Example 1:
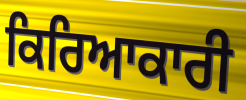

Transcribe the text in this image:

ਕਿਰਿਆਕਾਰੀ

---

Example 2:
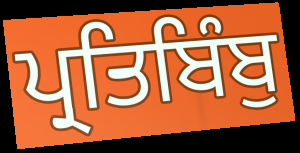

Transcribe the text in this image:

ਪ੍ਰਤਿਬਿੰਬੁ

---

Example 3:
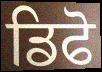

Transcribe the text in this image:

ਡਿਫੋ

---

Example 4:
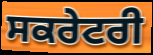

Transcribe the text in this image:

ਸਕਰੇਟਰੀ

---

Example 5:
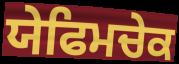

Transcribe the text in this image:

ਯੇਫਿਮਚੇਕ